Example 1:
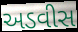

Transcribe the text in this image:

અડવીસ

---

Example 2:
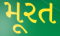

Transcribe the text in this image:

મૂરત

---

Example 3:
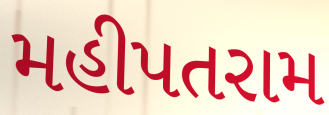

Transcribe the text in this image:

મહીપતરામ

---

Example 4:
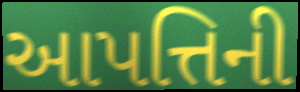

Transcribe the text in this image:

આપત્તિની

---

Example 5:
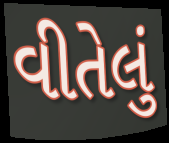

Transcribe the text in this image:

વીતેલું